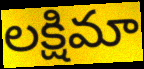
లక్షిమా